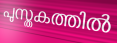
പുസ്തകത്തിൽ